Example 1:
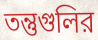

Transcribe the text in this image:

তন্তুগুলির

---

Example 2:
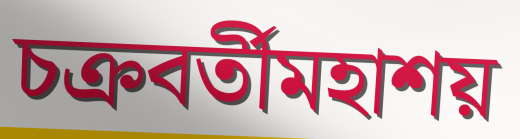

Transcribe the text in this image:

চক্রবর্তীমহাশয়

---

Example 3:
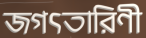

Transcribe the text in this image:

জগৎতারিণী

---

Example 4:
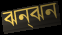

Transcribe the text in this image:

ঝন্ঝন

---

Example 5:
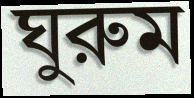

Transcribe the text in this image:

ঘুরুম